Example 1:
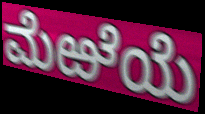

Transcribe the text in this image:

ಮೆಱೆಯೆ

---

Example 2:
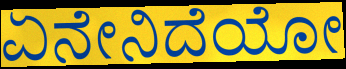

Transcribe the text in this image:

ಏನೇನಿದೆಯೋ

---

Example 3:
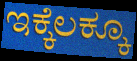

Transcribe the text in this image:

ಇಕ್ಕೆಲಕ್ಕೂ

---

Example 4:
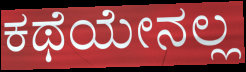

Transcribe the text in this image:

ಕಥೆಯೇನಲ್ಲ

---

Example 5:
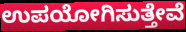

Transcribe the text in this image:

ಉಪಯೋಗಿಸುತ್ತೇವೆ